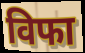
विफा